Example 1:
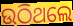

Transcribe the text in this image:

ଉଠିଥଲେ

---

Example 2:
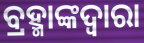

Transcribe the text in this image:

ବ୍ରହ୍ମାଙ୍କଦ୍ୱାରା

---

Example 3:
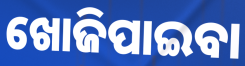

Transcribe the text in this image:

ଖୋଜିପାଇବା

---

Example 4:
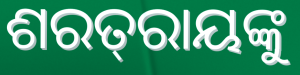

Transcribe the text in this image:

ଶରତ୍‌ରାୟଙ୍କୁ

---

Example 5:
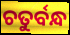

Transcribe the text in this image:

ଚତୁର୍ବନ୍ଧ